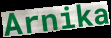
Arnika